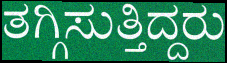
ತಗ್ಗಿಸುತ್ತಿದ್ದರು